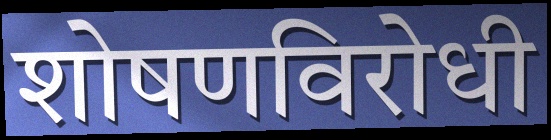
शोषणविरोधी